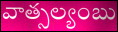
వాత్సల్యంబు